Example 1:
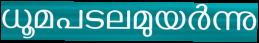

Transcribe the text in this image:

ധൂമപടലമുയർന്നു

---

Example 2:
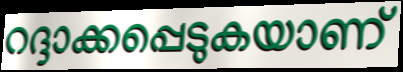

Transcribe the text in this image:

റദ്ദാക്കപ്പെടുകയാണ്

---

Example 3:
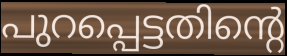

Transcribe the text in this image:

പുറപ്പെട്ടതിന്റെ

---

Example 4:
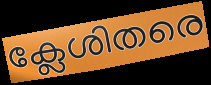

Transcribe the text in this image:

ക്ലേശിതരെ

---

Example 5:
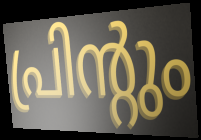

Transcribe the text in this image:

പ്രിന്റും